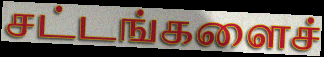
சட்டங்களைச்